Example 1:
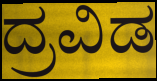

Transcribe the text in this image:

ದ್ರವಿಡ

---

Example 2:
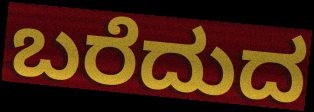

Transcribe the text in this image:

ಬರೆದುದ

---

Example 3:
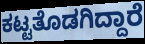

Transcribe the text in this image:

ಕಟ್ಟತೊಡಗಿದ್ದಾರೆ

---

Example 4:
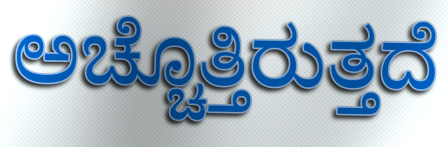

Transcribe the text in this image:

ಅಚ್ಚೊತ್ತಿರುತ್ತದೆ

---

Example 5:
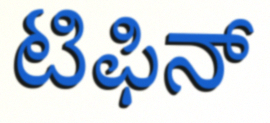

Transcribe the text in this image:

ಟಿಫಿನ್